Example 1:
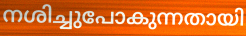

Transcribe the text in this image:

നശിച്ചുപോകുന്നതായി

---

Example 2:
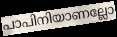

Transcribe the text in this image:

പാപിനിയാണല്ലോ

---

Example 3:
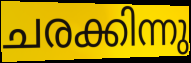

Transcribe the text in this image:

ചരക്കിന്നു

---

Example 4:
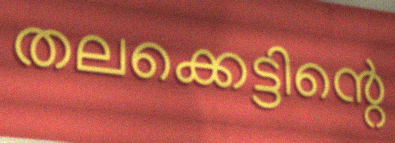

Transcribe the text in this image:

തലക്കെട്ടിന്റെ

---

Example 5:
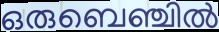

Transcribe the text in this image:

ഒരുബെഞ്ചിൽ